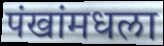
पंखांमधला